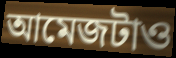
আমেজটাও